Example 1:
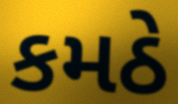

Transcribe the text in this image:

કમઠે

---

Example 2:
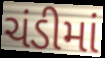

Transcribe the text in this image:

ચંડીમાં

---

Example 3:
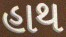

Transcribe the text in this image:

હાથ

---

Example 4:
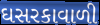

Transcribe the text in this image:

ઘસરકાવાળી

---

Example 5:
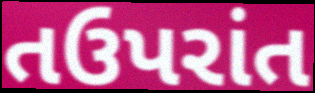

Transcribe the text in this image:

તઉપરાંત